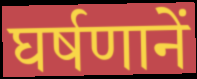
घर्षणानें